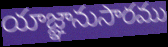
యాజ్ఞానుసారము